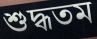
শুদ্ধতম